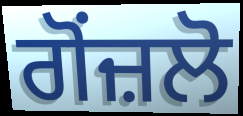
ਗੋਂਜ਼ਲੋ